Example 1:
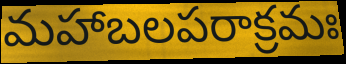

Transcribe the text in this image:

మహాబలపరాక్రమః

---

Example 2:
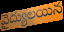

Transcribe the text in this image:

వైద్యులయిన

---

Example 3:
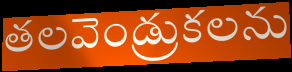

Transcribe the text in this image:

తలవెండ్రుకలను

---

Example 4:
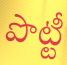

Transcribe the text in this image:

పొట్టీ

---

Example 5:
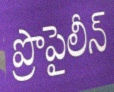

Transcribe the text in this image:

ప్రొపైలీన్